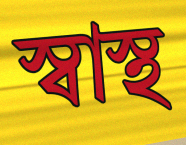
স্বাস্থ